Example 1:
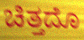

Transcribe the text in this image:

ಚಿತ್ತದೊ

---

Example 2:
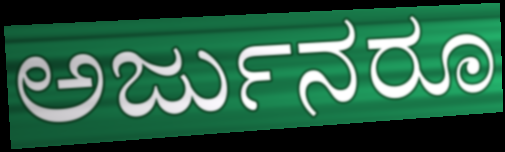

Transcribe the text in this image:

ಅರ್ಜುನರೂ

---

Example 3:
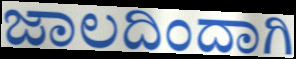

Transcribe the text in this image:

ಜಾಲದಿಂದಾಗಿ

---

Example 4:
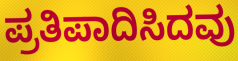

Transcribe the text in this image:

ಪ್ರತಿಪಾದಿಸಿದವು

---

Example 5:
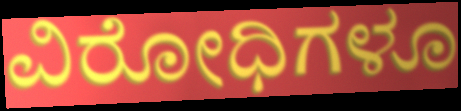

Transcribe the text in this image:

ವಿರೋಧಿಗಳೂ